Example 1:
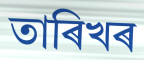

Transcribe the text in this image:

তাৰিখৰ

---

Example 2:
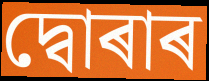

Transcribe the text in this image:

দ্বোৰাৰ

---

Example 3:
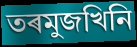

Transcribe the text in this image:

তৰমুজখিনি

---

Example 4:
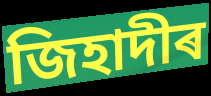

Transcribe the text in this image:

জিহাদীৰ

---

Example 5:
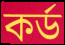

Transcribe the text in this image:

কৰ্ড